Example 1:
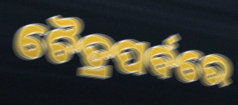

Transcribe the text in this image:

ଚୈତ୍ରପର୍ବରେ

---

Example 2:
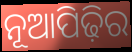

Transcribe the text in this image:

ନୂଆପିଢ଼ିର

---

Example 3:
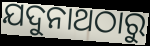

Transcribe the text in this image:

ଯଦୁନାଥଠାରୁ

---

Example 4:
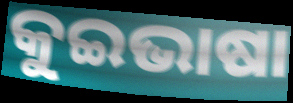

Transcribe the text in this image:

କୁଇଭାଷା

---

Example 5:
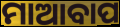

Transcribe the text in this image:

ମାଆବାପ